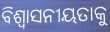
ବିଶ୍ୱାସନୀୟତାକୁ